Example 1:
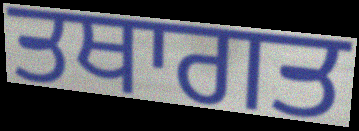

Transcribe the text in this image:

ਤਥਾਗਤ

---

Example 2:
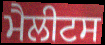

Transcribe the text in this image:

ਮੈਲੀਟਸ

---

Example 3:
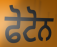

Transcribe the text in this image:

ਫੋਟੋਨ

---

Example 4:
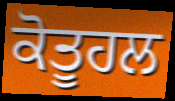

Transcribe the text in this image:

ਕੋਤੂਹਲ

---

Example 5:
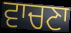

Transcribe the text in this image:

ਵਾਚਣਾ